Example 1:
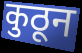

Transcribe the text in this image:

कुठून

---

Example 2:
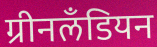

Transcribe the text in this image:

ग्रीनलॅंडियन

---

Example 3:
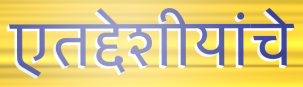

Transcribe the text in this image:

एतद्देशीयांचे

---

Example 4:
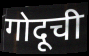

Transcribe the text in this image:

गोदूची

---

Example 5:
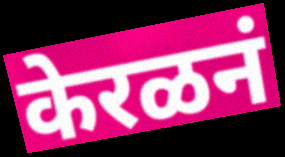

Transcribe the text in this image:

केरळनं